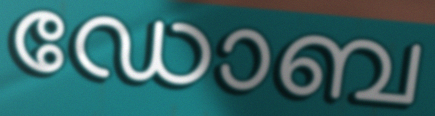
ഡോബ